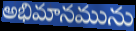
అభిమానమును